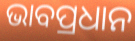
ଭାବପ୍ରଧାନ